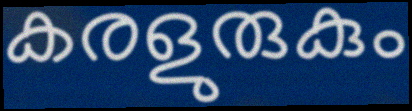
കരളുരുകും